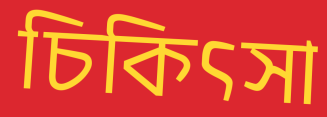
চিকিৎসা